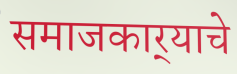
समाजकार्याचे